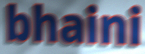
bhaini